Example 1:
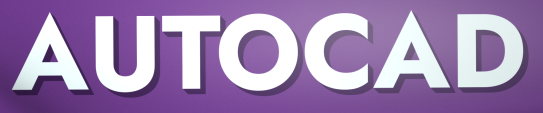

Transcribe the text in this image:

AUTOCAD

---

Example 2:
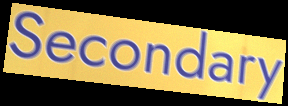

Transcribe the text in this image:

Secondary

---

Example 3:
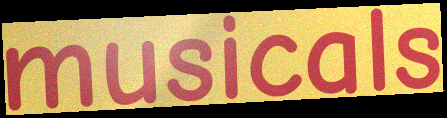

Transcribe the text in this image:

musicals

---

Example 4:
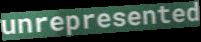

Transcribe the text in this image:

unrepresented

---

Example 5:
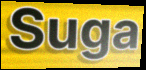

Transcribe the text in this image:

Suga